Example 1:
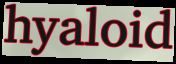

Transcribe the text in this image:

hyaloid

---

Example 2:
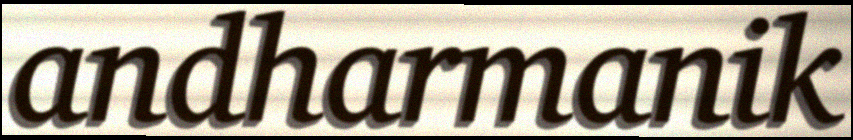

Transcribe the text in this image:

andharmanik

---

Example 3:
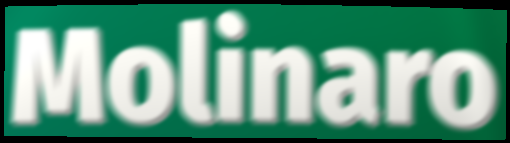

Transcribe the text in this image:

Molinaro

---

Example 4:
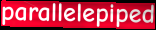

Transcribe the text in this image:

parallelepiped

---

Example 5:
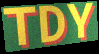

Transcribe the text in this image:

TDY